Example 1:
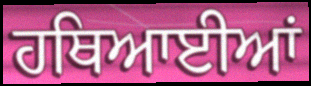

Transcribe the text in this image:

ਹਥਿਆਈਆਂ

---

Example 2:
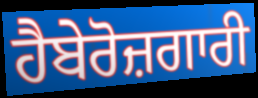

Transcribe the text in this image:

ਹੈਬੇਰੋਜ਼ਗਾਰੀ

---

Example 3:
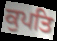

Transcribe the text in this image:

ਕੁਪਤਿ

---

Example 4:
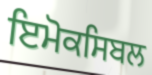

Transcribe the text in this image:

ਇਮੋਕਸਿਬਲ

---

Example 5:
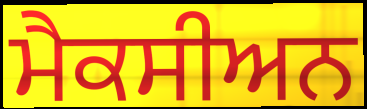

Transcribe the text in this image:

ਮੈਕਸੀਅਨ